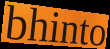
bhinto